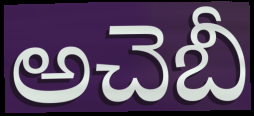
అచెబీ